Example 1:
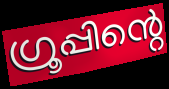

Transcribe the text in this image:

ഗ്രൂപ്പിന്റെ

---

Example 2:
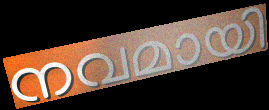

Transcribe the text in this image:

നവമായി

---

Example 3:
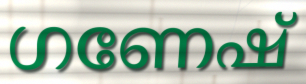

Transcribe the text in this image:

ഗണേഷ്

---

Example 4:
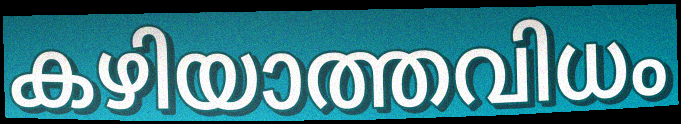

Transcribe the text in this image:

കഴിയാത്തവിധം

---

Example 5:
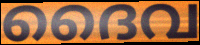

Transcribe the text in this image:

ദൈവ